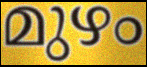
മുഴം